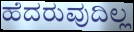
ಹೆದರುವುದಿಲ್ಲ